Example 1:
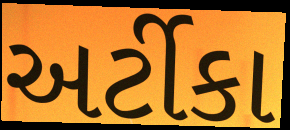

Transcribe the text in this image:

અર્ટીકા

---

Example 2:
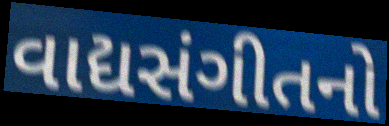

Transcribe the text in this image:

વાદ્યસંગીતનો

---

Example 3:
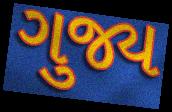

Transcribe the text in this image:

ગુજ્ય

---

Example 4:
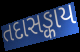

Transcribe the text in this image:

તદાસઙ્કાય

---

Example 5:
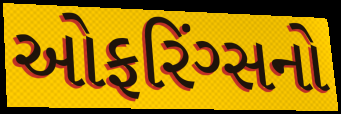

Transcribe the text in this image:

ઓફરિંગ્સનો